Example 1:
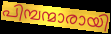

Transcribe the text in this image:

പിമ്പന്മാരായി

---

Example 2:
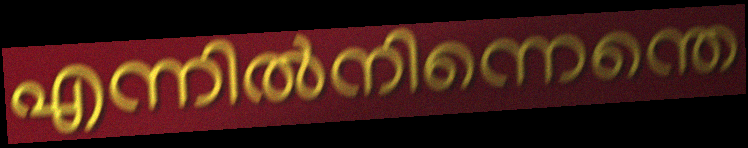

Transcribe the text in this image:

എന്നിൽനിന്നെന്തെ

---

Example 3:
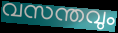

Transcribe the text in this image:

വസന്തവും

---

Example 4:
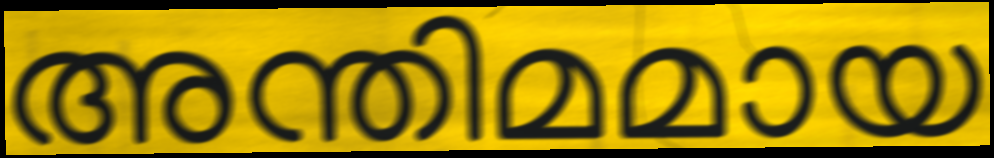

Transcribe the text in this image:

അന്തിമമായ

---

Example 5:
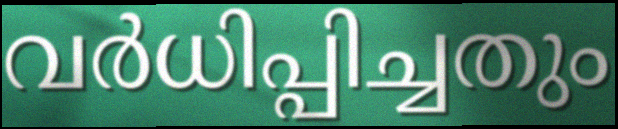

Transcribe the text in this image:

വർധിപ്പിച്ചതും